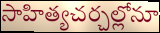
సాహిత్యచర్చల్లోనూ